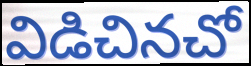
విడిచినచో